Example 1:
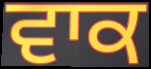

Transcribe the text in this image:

ਵਾਕ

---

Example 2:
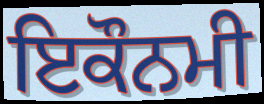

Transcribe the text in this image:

ਇਕੌਨਮੀ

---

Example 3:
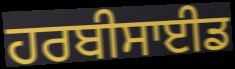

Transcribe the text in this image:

ਹਰਬੀਸਾਈਡ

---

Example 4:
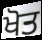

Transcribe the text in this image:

ਖੋਤ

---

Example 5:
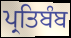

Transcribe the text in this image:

ਪ੍ਰਤਿਬੰਬ